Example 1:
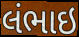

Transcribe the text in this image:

લંભાઇ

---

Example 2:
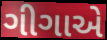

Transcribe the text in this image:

ગીગાએ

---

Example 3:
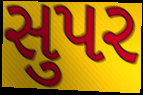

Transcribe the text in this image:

સુપર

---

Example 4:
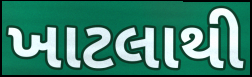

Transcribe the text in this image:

ખાટલાથી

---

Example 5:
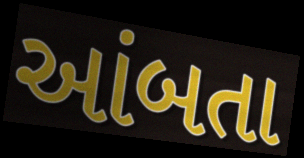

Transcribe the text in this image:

આંબતા